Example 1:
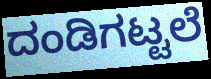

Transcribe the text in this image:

ದಂಡಿಗಟ್ಟಲೆ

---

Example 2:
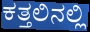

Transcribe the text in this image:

ಕತ್ತಲಿನಲ್ಲಿ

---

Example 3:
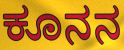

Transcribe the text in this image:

ಕೂನನ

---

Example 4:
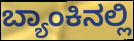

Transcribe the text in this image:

ಬ್ಯಾಂಕಿನಲ್ಲಿ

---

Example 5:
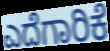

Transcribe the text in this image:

ಎದೆಗಾರಿಕೆ